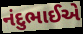
નંદુભાઈએ